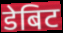
डेबिट